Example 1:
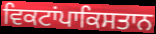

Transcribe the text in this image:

ਵਿਕਟਾਂਪਾਕਿਸਤਾਨ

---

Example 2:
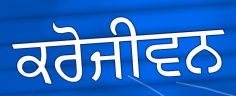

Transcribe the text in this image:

ਕਰੋਜੀਵਨ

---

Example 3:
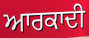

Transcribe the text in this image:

ਆਰਕਾਦੀ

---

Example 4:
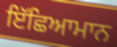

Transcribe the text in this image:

ਇੱਛਿਆਮਾਨ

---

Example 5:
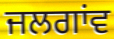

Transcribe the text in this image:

ਜਲਗਾਂਵ